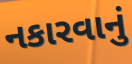
નકારવાનું